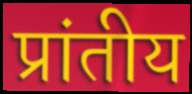
प्रांतीय